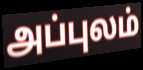
அப்புலம்